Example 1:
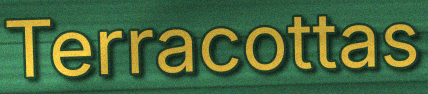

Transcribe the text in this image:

Terracottas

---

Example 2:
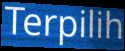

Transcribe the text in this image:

Terpilih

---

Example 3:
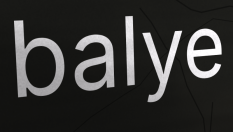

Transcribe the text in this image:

balye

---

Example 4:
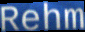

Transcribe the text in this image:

Rehm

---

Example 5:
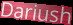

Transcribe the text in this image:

Dariush